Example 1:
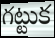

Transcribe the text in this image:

గట్టుక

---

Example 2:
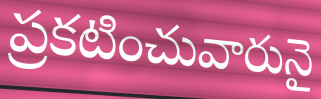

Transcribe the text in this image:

ప్రకటించువారునై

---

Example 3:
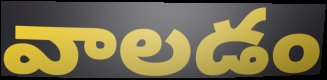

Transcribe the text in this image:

వాలడం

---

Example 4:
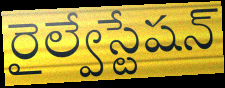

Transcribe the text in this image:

రైల్వేస్టేషన్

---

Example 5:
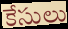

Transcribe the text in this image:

కేసులు